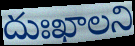
దుఃఖాలని